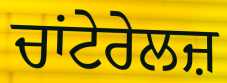
ਚਾਂਟੇਰੇਲਜ਼